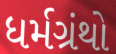
ધર્મગ્રંથો